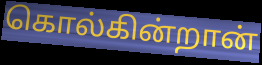
கொல்கின்றான்